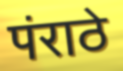
पंराठे